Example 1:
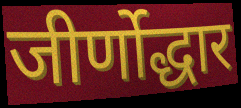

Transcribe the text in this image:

जीर्णोद्धार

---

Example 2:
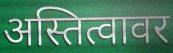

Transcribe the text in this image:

अस्तित्वावर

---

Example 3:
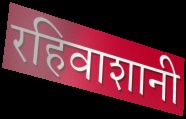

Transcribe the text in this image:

रहिवाशानी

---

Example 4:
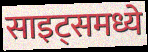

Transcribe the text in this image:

साइट्समध्ये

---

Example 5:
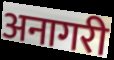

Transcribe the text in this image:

अनागरी